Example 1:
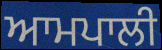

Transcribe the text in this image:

ਆਮਪਾਲੀ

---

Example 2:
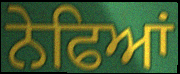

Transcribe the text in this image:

ਨੇਫਿਆਂ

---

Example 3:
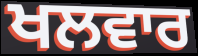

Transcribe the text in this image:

ਖਲਵਾਰ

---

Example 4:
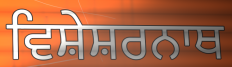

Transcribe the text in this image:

ਵਿਸ਼ੇਸ਼ਰਨਾਥ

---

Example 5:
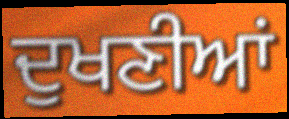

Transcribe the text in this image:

ਦੁਖਣੀਆਂ